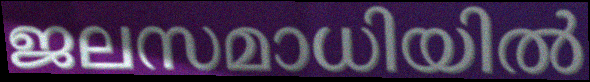
ജലസമാധിയിൽ